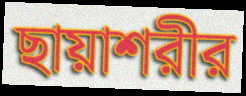
ছায়াশরীর